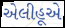
એલીહૂએ